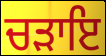
ਚੜਾਇ